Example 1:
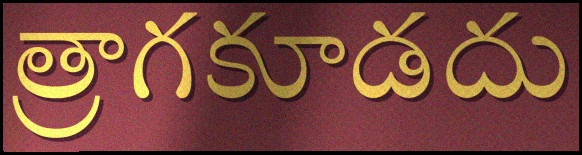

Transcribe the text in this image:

త్రాగకూడదు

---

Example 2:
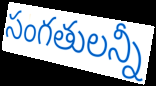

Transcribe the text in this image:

సంగతులన్నీ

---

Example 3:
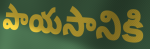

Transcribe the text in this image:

పాయసానికి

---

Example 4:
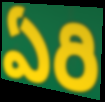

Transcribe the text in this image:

ఏరి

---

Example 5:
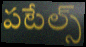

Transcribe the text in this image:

పటేల్స్